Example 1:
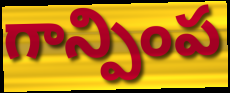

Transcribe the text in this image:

గాన్పింప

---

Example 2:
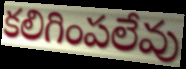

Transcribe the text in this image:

కలిగింపలేవు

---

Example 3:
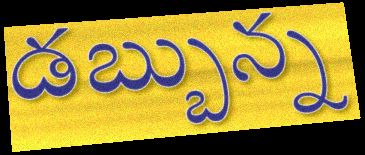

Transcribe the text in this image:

డబ్బున్న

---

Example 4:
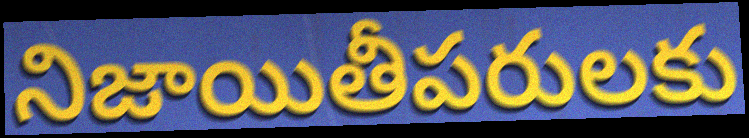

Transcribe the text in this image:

నిజాయితీపరులకు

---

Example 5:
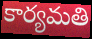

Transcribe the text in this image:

కార్యమతి